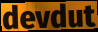
devdut